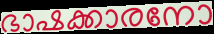
ഭാഷക്കാരനോ